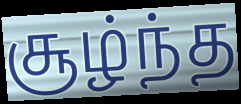
சூழ்ந்த